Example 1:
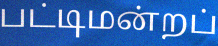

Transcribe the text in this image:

பட்டிமன்றப்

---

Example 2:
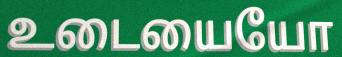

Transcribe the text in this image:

உடையையோ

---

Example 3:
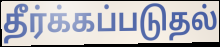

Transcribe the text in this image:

தீர்க்கப்படுதல்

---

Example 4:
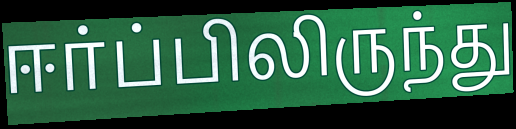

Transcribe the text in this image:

ஈர்ப்பிலிருந்து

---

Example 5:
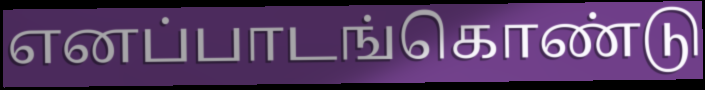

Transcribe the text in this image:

எனப்பாடங்கொண்டு